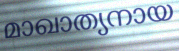
മാഖാത്യനായ